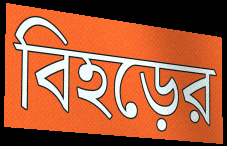
বিহড়ের